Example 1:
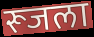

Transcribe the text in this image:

रूजला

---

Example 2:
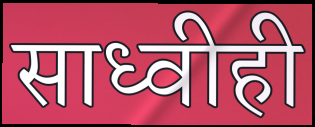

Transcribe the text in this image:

साध्वीही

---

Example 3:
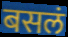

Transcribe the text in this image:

बसलं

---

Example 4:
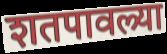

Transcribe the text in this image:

शतपावल्या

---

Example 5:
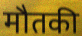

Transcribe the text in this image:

मौतकी